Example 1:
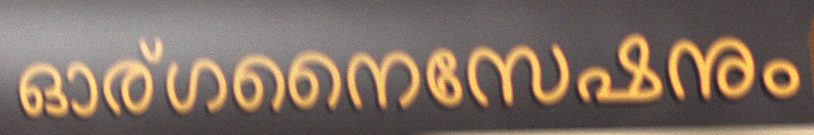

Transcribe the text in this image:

ഓര്ഗനൈസേഷനും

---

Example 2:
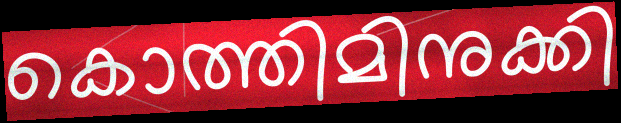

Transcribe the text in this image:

കൊത്തിമിനുക്കി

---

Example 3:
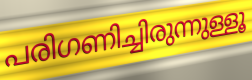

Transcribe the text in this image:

പരിഗണിച്ചിരുന്നുള്ളൂ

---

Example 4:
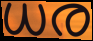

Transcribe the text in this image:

ധര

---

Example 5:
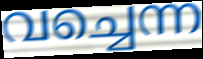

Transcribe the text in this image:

വച്ചെന്ന